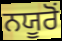
ਨਯੂਰੋਂ